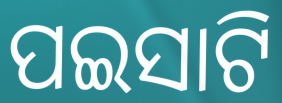
ପଇସାଟି